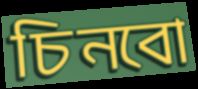
চিনবো